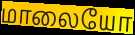
மாலையோ